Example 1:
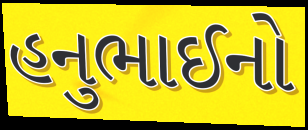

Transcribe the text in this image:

હનુભાઈનો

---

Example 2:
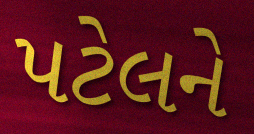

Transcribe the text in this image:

પટેલને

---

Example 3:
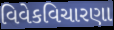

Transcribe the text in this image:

વિવેકવિચારણા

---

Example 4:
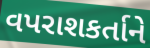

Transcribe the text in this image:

વપરાશકર્તાને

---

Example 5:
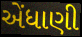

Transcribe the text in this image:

એંધાણી